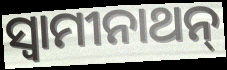
ସ୍ବାମୀନାଥନ୍